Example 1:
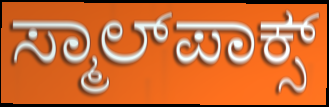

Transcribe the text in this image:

ಸ್ಮಾಲ್‌ಪಾಕ್ಸ್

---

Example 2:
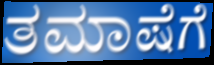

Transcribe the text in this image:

ತಮಾಷೆಗೆ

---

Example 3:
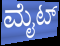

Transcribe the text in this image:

ಮೈಟ್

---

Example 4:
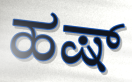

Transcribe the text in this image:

ಹಷ್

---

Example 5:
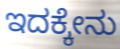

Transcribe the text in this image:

ಇದಕ್ಕೇನು